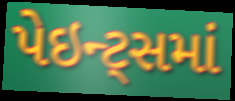
પેઇન્ટ્સમાં